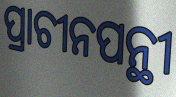
ପ୍ରାଚୀନପନ୍ଥୀ